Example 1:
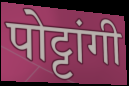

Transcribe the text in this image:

पोट्टांगी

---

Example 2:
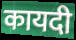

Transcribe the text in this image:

कायदी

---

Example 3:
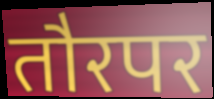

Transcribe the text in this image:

तौरपर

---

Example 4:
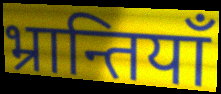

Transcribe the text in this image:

भ्रान्तियाँ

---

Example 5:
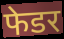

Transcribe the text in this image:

फेडर